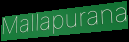
Mallapurana